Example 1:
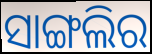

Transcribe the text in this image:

ସାଙ୍ଗଲିର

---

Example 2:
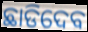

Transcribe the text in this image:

ଛାଡିଦେବ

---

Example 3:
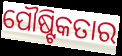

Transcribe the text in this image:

ପୌଷ୍ଟିକତାର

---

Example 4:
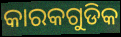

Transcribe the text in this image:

କାରକଗୁଡିକ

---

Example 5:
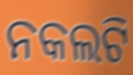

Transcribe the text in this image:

ନକଲଟି